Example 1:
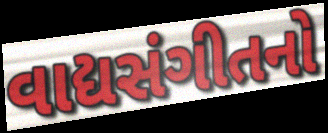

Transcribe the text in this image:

વાદ્યસંગીતનો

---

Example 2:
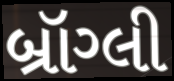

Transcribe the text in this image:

બ્રૉગ્લી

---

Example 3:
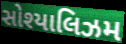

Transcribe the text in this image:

સોશ્યાલિઝમ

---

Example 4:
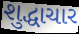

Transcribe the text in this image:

શુદ્ધાચાર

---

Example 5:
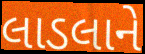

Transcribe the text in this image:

લાડલાને